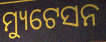
ମ୍ୟୁଟେସନ